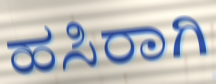
ಹಸಿರಾಗಿ